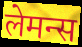
लेमन्स